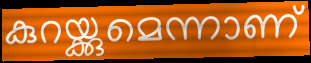
കുറയ്ക്കുമെന്നാണ്